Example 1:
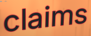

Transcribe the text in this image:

claims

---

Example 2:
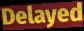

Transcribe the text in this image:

Delayed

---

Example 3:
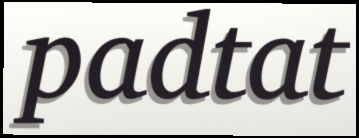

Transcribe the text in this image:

padtat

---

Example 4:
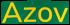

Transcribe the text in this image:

Azov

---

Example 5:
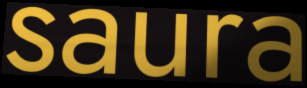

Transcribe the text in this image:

saura